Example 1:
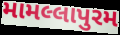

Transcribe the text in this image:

મામલ્લાપુરમ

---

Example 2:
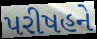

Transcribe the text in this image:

પરીષહને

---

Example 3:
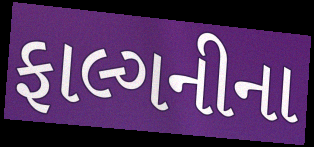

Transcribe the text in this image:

ફાલ્ગનીના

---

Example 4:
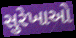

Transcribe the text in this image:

સુરેખાઓ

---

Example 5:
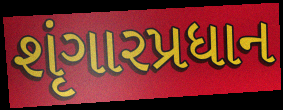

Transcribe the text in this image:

શૃંગારપ્રધાન